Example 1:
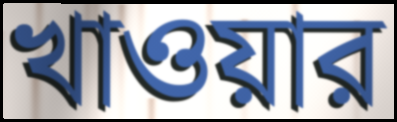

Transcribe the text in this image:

খাওয়ার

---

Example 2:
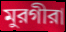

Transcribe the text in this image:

মুরগীরা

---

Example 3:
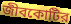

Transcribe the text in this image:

জীবকোটির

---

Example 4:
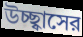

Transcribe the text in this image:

উচ্ছ্বাসের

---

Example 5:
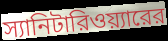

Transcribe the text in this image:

স্যানিটারিওয়্যারের